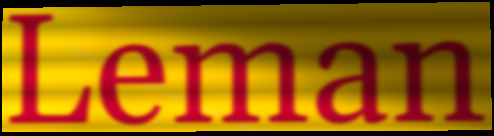
Leman